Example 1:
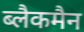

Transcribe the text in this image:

ब्लैकमैन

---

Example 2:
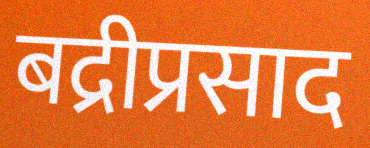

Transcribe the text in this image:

बद्रीप्रसाद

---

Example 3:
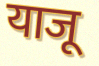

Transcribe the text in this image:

याजू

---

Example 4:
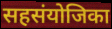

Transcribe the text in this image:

सहसंयोजिका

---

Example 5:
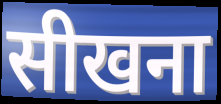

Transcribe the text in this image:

सीखना